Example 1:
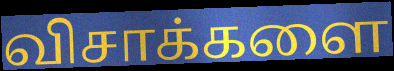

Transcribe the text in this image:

விசாக்களை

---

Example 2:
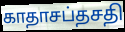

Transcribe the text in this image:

காதாசப்தசதி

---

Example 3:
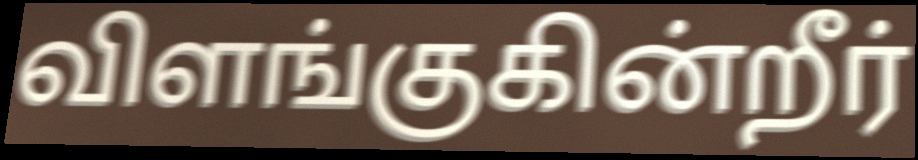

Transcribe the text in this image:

விளங்குகின்றீர்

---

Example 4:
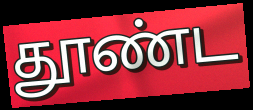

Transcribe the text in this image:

தூண்ட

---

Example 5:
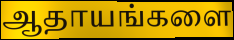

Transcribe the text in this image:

ஆதாயங்களை